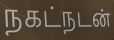
நகட்நடன்